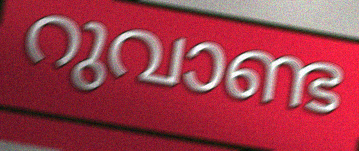
റുവാണ്ട